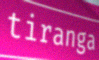
tiranga